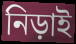
নিড়াই